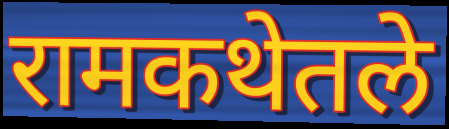
रामकथेतले